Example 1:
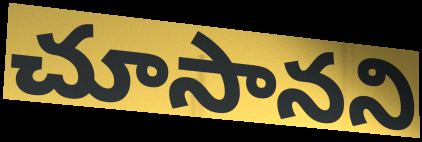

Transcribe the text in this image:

చూసానని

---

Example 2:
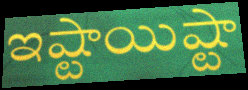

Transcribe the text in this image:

ఇష్టాయిష్టా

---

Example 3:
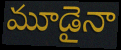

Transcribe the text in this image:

మూడైనా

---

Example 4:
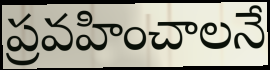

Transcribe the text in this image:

ప్రవహించాలనే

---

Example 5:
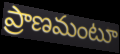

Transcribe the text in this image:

ప్రాణమంటూ